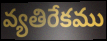
వ్యతిరేకము